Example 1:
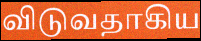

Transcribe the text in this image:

விடுவதாகிய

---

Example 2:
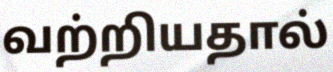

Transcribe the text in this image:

வற்றியதால்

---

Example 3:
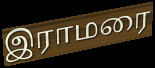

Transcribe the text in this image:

இராமரை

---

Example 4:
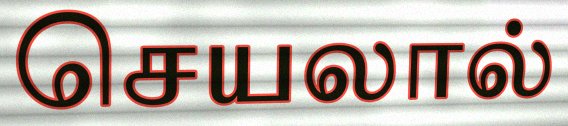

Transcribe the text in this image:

செயலால்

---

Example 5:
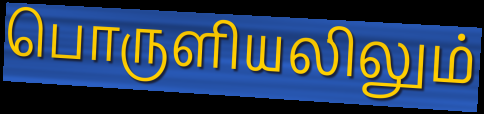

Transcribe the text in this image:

பொருளியலிலும்